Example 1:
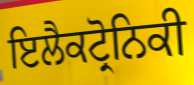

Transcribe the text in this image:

ਇਲੈਕਟ੍ਰੋਨਿਕੀ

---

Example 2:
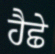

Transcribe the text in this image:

ਹੈਛੇ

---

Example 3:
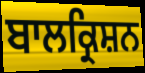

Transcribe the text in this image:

ਬਾਲਕ੍ਰਿਸ਼ਨ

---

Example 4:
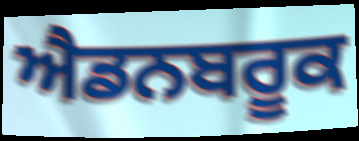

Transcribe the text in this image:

ਐਡਨਬਰੂਕ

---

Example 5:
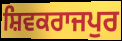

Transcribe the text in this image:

ਸ਼ਿਵਕਰਾਜਪੁਰ